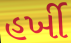
હર્ખી